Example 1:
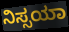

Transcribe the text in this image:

ನಿಸ್ಸಯಾ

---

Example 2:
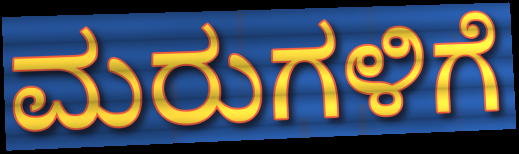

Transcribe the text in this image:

ಮರುಗಳಿಗೆ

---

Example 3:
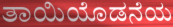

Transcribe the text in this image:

ತಾಯಿಯೊಡನೆಯ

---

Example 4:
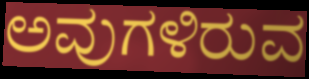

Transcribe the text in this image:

ಅವುಗಳಿರುವ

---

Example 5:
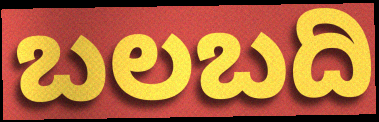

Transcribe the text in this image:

ಬಲಬದಿ